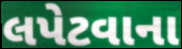
લપેટવાના